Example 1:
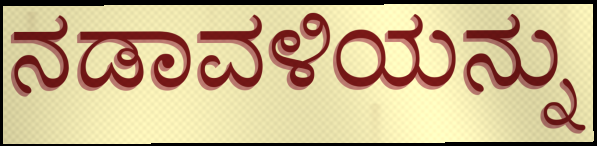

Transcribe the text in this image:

ನಡಾವಳಿಯನ್ನು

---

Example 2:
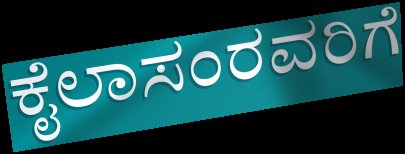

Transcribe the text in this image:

ಕೈಲಾಸಂರವರಿಗೆ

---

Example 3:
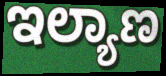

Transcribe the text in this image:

ಇಲ್ಯಾಣ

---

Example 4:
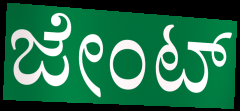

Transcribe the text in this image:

ಜೇಂಟ್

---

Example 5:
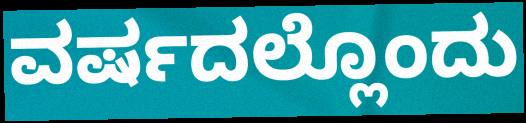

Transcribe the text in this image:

ವರ್ಷದಲ್ಲೊಂದು